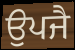
ਉਪਜੈ